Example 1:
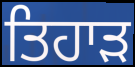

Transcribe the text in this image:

ਤਿਹਾੜ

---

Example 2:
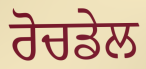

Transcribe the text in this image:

ਰੋਚਡੇਲ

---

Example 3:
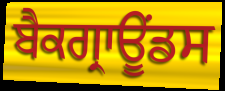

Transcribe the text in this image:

ਬੈਕਗ੍ਰਾਊਂਡਸ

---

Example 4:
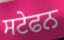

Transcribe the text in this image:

ਸਟੇਫਨ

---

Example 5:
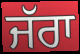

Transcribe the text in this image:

ਜੱਰਾ